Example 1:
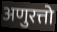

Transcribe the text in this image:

अणुरत्तो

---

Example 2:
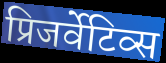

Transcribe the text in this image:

प्रिजर्वेटिव्स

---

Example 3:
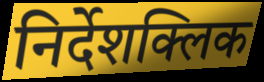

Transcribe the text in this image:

निर्देशक्लिक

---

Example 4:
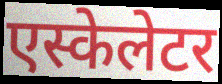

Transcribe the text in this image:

एस्केलेटर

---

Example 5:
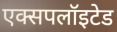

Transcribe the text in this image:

एक्सपलॉइटेड